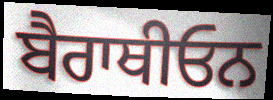
ਬੈਰਾਥੀਓਨ